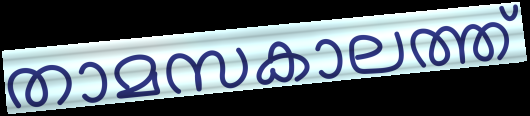
താമസകാലത്ത്